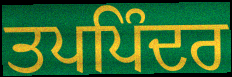
ਤਪਪਿੰਦਰ